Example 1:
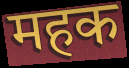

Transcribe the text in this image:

महक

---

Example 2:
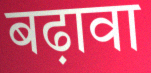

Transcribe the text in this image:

बढ़ावा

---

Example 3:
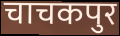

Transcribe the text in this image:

चाचकपुर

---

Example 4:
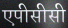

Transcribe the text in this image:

एपीसीसी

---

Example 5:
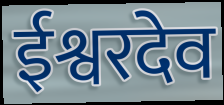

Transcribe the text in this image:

ईश्वरदेव